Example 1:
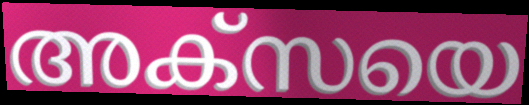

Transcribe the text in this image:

അക്സയെ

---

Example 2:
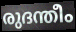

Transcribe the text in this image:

രുദന്തീം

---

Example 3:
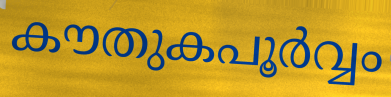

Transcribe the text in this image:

കൗതുകപൂർവ്വം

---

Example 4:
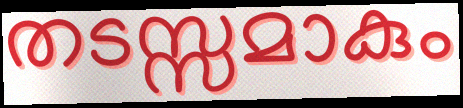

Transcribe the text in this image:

തടസ്സമാകും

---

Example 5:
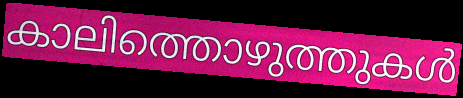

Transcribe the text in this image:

കാലിത്തൊഴുത്തുകൾ